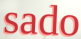
sado